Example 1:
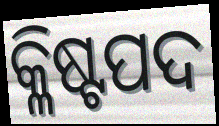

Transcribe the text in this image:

କ୍ଳିଷ୍ଟପଦ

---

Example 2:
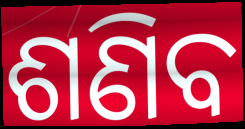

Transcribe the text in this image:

ଶଣିବ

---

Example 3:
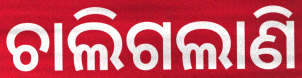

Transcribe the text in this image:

ଚାଲିଗଲାଣି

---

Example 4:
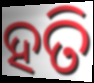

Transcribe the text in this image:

ହତି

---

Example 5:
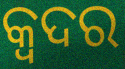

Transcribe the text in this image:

କ୍ୱଦର